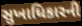
સુખાધિકારની